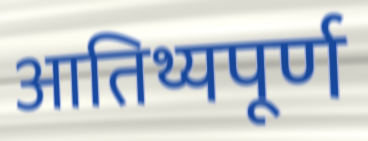
आतिथ्यपूर्ण